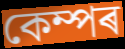
কেম্পৰ